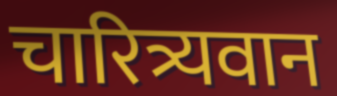
चारित्र्यवान